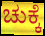
ಚುಕ್ಕೆ